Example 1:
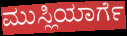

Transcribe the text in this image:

ಮುಸ್ಲಿಯಾರ್ಗೆ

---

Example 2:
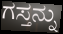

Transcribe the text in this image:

ಗಸ್ತನ್ನು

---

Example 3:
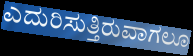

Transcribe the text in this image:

ಎದುರಿಸುತ್ತಿರುವಾಗಲೂ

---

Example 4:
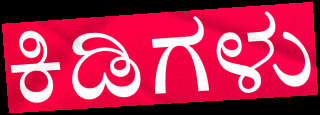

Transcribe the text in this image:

ಕಿಡಿಗಳು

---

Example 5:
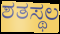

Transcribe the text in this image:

ಶತಸ್ಥಲ